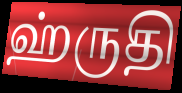
ஹ்ருதி